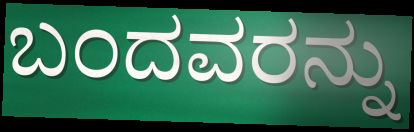
ಬಂದವರನ್ನು